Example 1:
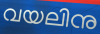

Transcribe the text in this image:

വയലിനു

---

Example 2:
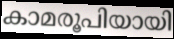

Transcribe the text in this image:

കാമരൂപിയായി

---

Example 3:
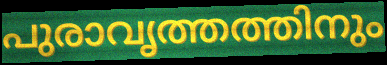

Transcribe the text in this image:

പുരാവൃത്തത്തിനും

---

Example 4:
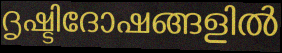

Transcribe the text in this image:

ദൃഷ്ടിദോഷങ്ങളിൽ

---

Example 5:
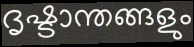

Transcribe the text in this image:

ദൃഷ്ടാന്തങ്ങളും